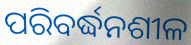
ପରିବର୍ଦ୍ଧନଶୀଳ